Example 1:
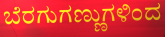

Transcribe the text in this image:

ಬೆರಗುಗಣ್ಣುಗಳಿಂದ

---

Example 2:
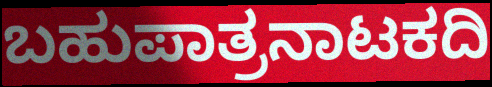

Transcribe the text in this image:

ಬಹುಪಾತ್ರನಾಟಕದಿ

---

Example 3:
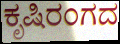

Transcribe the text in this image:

ಕೃಷಿರಂಗದ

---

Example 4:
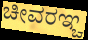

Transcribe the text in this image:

ಚೀವರಞ್ಚ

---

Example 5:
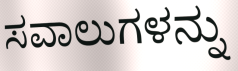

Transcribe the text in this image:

ಸವಾಲುಗಳನ್ನು